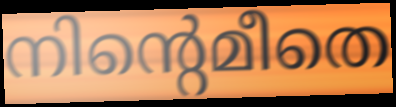
നിന്റെമീതെ